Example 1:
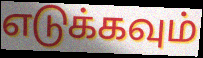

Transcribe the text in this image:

எடுக்கவும்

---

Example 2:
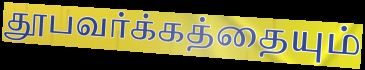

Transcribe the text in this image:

தூபவர்க்கத்தையும்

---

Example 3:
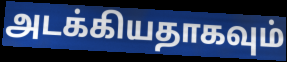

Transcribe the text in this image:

அடக்கியதாகவும்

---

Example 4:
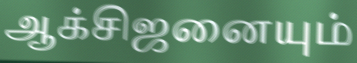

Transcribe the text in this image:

ஆக்சிஜனையும்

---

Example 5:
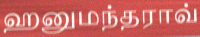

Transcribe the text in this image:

ஹனுமந்தராவ்